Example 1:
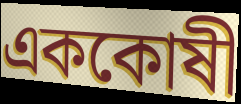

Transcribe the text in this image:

এককোষী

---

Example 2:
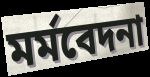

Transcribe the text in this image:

মর্মবেদনা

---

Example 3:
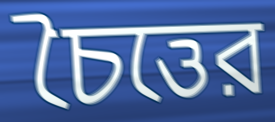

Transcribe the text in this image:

চৈত্তের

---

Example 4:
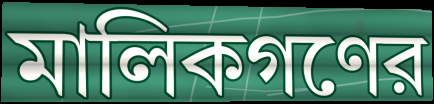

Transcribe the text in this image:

মালিকগণের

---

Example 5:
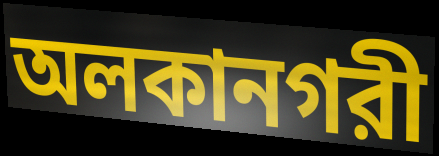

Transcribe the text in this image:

অলকানগরী